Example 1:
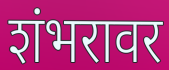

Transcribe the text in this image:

शंभरावर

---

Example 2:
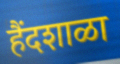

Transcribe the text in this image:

हैंदशाळा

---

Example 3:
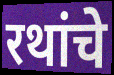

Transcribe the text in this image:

रथांचे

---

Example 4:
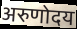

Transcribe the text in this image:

अरुणोदय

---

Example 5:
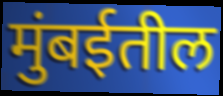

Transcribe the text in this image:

मुंबईतील